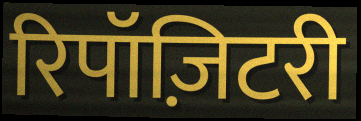
रिपॉज़िटरी